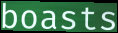
boasts